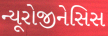
ન્યૂરોજીનેસિસ